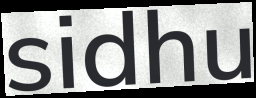
sidhu